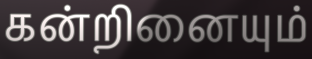
கன்றினையும்